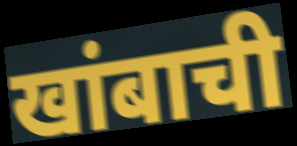
खांबाची